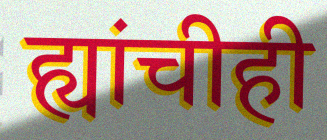
ह्यांचीही